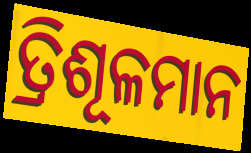
ତ୍ରିଶୂଳମାନ